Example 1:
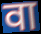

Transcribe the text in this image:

वा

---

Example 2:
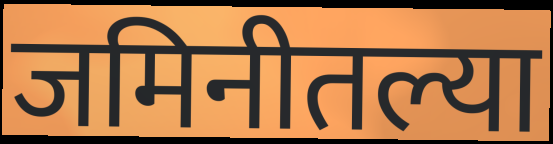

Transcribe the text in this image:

जमिनीतल्या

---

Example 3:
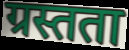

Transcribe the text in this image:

ग्रस्तता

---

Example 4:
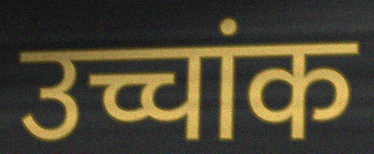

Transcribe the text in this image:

उच्चांक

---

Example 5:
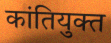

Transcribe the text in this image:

कांतियुक्त